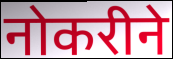
नोकरीने